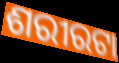
ଶରୀରଟା